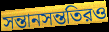
সন্তানসন্ততিরও